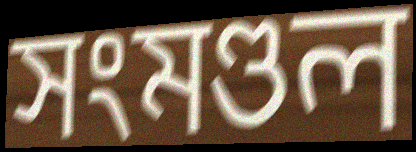
সংমণ্ডল